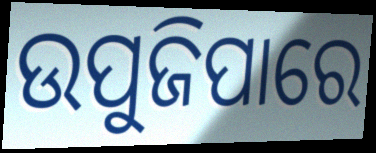
ଉପୁଜିପାରେ